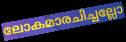
ലോകമാരചിച്ചല്ലോ